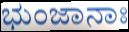
ಭುಂಜಾನಾಃ